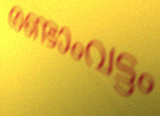
രണ്ടാംവട്ടം